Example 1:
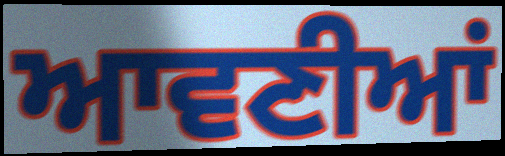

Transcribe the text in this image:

ਆਵਣੀਆਂ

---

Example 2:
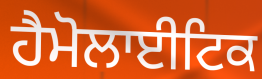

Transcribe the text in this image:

ਹੈਮੋਲਾਈਟਿਕ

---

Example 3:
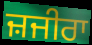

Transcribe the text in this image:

ਜ਼ਜੀਰਾ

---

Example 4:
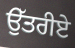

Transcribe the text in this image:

ਉੱਤਰੀਏ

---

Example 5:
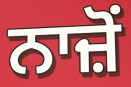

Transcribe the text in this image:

ਨਾਜ਼ੋਂ